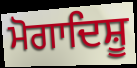
ਮੋਗਾਦਿਸ਼ੂ